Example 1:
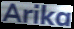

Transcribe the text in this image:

Arika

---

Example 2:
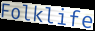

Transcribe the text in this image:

Folklife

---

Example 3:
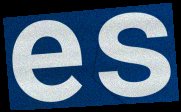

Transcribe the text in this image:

es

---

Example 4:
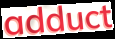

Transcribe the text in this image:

adduct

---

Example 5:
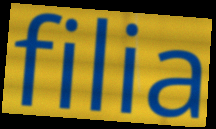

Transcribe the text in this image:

filia